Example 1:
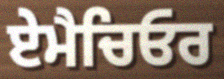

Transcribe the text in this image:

ਏਮੈਚਿਓਰ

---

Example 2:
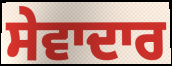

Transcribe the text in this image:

ਸੇਵਾਦਾਰ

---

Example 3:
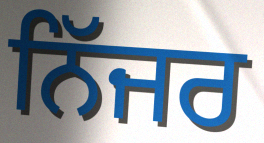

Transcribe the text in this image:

ਨਿੱਜਰ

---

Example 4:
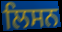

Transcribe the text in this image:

ਲਿਸਨ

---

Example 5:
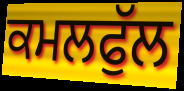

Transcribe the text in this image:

ਕਮਲਫੁੱਲ